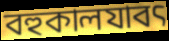
বহুকালযাবৎ